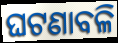
ଘଟଣାବଳି